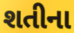
શતીના